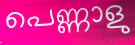
പെണ്ണാളു